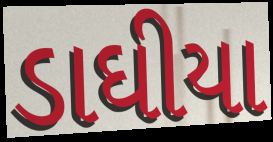
ડાઘીયા